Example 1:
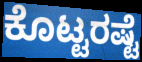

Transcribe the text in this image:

ಕೊಟ್ಟರಷ್ಟೆ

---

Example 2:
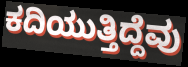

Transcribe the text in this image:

ಕದಿಯುತ್ತಿದ್ದೆವು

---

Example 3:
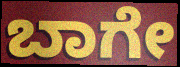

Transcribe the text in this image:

ಬಾಗೇ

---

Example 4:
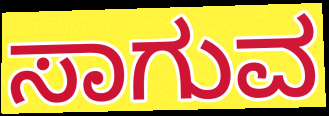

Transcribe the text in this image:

ಸಾಗುವ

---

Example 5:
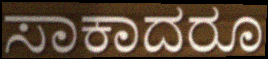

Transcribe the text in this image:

ಸಾಕಾದರೂ